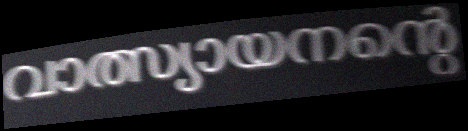
വാത്സ്യായനന്റെ